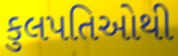
કુલપતિઓથી